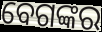
ବେଗଙ୍କର